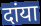
दांया